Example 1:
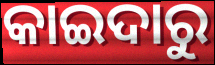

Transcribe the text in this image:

କାଇଦାରୁ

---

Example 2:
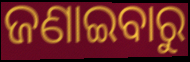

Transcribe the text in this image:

ଜଣାଇବାରୁ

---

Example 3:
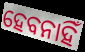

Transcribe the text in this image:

ହେବନାହିଁ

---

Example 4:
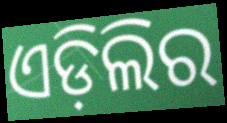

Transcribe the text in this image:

ଏଡ଼ିଲିର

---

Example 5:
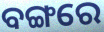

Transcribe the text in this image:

ବଙ୍ଗରେ